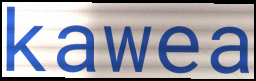
kawea